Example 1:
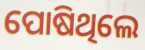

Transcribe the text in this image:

ପୋଷିଥିଲେ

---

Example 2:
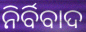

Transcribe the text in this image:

ନିର୍ବିବାଦ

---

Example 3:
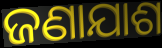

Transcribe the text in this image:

ଜଣାଯାଶ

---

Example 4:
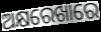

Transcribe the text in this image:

ଅକ୍ଷରେଖାରେ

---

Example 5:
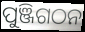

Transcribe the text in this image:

ପୁଞ୍ଜିଗଠନ